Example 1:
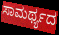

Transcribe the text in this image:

ಸಾಮರ್ಥ್ಯದ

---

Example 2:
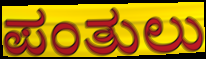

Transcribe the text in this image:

ಪಂತುಲು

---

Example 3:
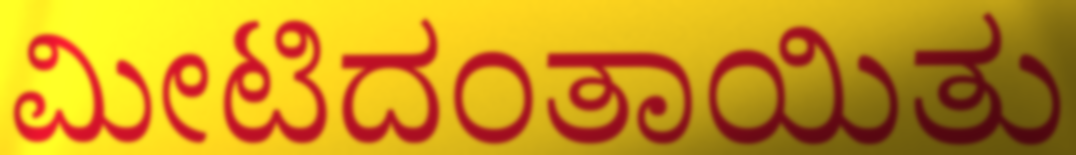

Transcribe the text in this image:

ಮೀಟಿದಂತಾಯಿತು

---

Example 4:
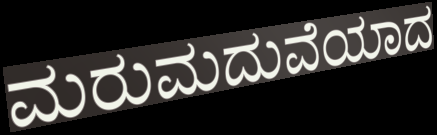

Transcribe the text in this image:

ಮರುಮದುವೆಯಾದ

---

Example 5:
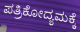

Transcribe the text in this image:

ಪತ್ರಿಕೋದ್ಯಮಕ್ಕೆ